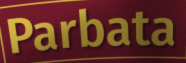
Parbata